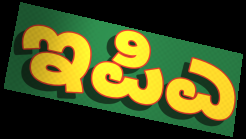
ಇಪಿಎ